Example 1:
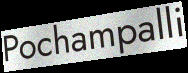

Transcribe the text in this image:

Pochampalli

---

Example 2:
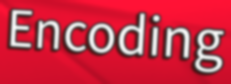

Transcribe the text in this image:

Encoding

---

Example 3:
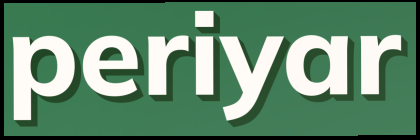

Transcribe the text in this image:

periyar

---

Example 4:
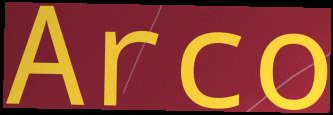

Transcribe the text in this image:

Arco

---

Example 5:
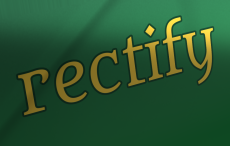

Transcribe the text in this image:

rectify